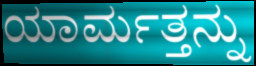
ಯಾರ್ಮತ್ತನ್ನು